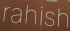
rahish